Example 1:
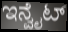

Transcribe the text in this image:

ಇನ್ವೈಟ್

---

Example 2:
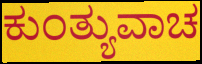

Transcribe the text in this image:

ಕುಂತ್ಯುವಾಚ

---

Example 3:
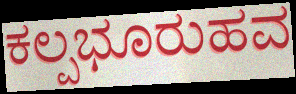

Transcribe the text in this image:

ಕಲ್ಪಭೂರುಹವ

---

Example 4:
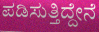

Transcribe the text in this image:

ಪಡಿಸುತ್ತಿದ್ದೇನೆ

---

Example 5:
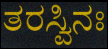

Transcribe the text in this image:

ತರಸ್ವಿನಃ